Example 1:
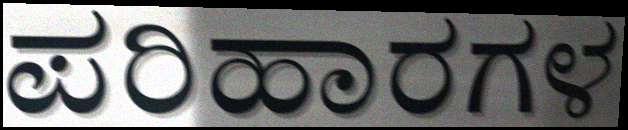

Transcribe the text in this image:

ಪರಿಹಾರಗಳ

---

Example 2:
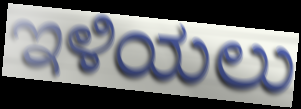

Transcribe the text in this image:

ಇಳಿಯಲು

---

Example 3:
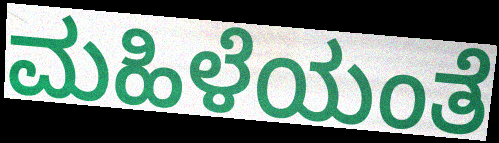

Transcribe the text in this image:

ಮಹಿಳೆಯಂತೆ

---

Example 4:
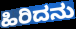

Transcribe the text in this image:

ಹಿರಿದನು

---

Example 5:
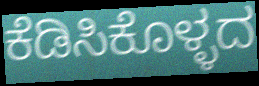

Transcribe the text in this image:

ಕೆಡಿಸಿಕೊಳ್ಳದ